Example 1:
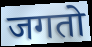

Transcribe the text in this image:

जगतो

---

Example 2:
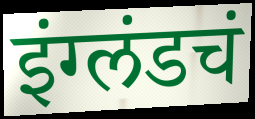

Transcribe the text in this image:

इंग्लंडचं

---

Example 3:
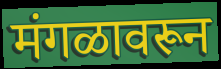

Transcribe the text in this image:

मंगळावरून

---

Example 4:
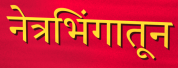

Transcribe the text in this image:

नेत्रभिंगातून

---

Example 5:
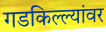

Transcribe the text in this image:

गडकिल्ल्यांवर